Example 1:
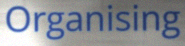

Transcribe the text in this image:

Organising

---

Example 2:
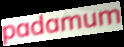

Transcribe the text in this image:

padamum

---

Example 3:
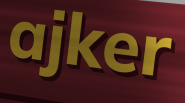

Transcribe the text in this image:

ajker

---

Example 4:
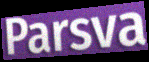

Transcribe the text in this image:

Parsva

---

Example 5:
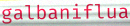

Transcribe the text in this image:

galbaniflua